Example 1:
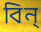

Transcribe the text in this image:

বিন্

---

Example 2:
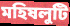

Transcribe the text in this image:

মহিষলুটি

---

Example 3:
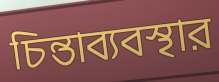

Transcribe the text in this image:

চিন্তাব্যবস্থার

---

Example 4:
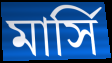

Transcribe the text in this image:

মার্সি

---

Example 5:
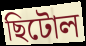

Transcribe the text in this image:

ছিটোল